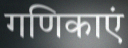
गणिकाएं